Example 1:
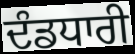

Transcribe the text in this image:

ਦੰਡਧਾਰੀ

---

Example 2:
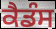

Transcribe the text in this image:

ਕੈਡੰਸ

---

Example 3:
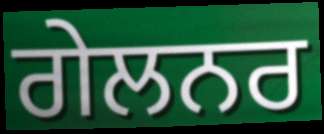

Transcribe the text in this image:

ਗੇਲਨਰ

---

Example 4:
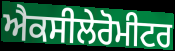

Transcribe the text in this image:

ਐਕਸੀਲੇਰੋਮੀਟਰ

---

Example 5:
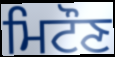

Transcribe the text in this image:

ਮਿਟੌਣ